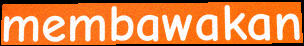
membawakan